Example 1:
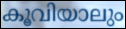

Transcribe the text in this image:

കൂവിയാലും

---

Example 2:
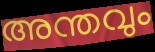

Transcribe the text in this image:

അന്തവും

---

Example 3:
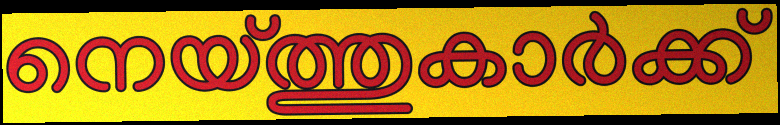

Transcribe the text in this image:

നെയ്ത്തുകാർക്ക്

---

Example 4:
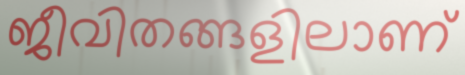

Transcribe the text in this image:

ജീവിതങ്ങളിലാണ്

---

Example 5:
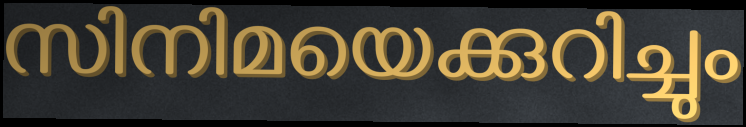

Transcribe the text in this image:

സിനിമയെക്കുറിച്ചും